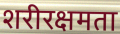
शरीरक्षमता